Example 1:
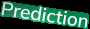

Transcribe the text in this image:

Prediction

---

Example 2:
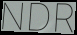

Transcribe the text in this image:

NDR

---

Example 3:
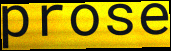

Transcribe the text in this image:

prose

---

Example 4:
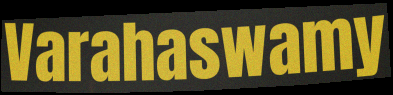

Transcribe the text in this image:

Varahaswamy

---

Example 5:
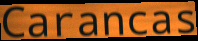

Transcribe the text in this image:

Carancas